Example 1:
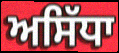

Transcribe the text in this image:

ਅਸਿੱਧਾ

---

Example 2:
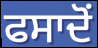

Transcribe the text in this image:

ਫਸਾਦੋਂ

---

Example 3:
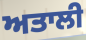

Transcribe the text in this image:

ਅਤਾਲੀ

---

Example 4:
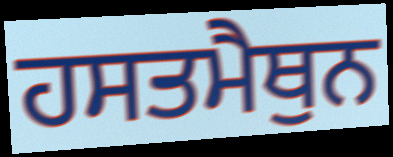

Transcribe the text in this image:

ਹਸਤਮੈਥੁਨ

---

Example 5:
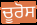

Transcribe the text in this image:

ਚੂਰੋਸ